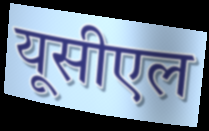
यूसीएल